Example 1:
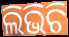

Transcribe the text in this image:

ଲିଭିଚି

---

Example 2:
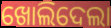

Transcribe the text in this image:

ଖୋଲିଦେଲା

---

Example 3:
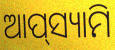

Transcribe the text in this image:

ଆପ୍‌ସ୍ୟାମି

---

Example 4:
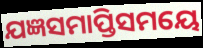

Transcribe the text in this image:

ଯଜ୍ଞସମାପ୍ତିସମୟେ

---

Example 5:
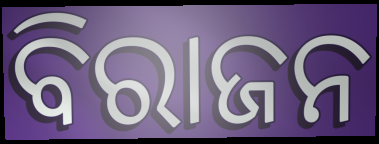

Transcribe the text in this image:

ବିରାଜନ